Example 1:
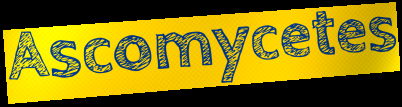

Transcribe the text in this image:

Ascomycetes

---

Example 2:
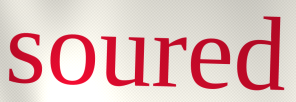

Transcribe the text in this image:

soured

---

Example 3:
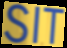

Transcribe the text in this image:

SIT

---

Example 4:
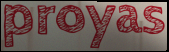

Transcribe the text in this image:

proyas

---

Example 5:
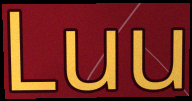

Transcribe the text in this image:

Luu